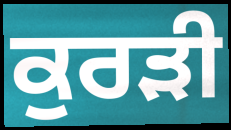
ਕੁਰੜੀ